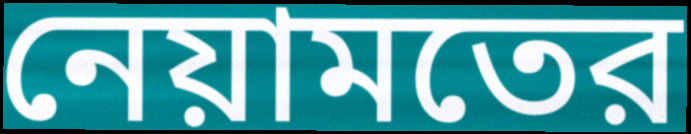
নেয়ামতের